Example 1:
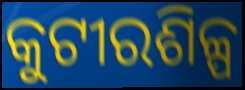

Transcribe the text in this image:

କୁଟୀରଶିଳ୍ପ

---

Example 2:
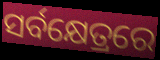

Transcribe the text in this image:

ସର୍ବକ୍ଷେତ୍ରରେ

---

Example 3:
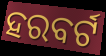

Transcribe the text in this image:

ହରବର୍ଟ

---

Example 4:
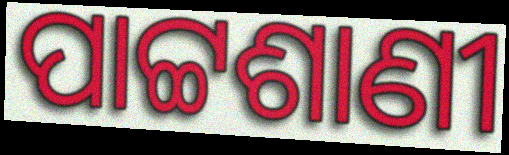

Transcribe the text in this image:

ପାଟ୍ଟଶାଣୀ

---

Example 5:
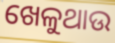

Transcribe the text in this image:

ଖେଳୁଥାଉ